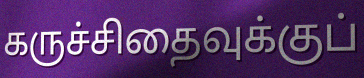
கருச்சிதைவுக்குப்